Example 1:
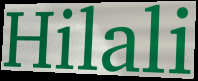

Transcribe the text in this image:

Hilali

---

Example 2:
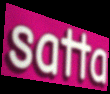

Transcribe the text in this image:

satta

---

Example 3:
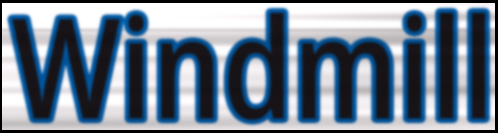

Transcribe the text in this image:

Windmill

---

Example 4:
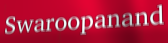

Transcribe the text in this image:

Swaroopanand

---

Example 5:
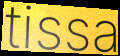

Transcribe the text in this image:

tissa